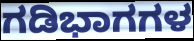
ಗಡಿಭಾಗಗಳ